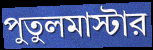
পুতুলমাস্টার